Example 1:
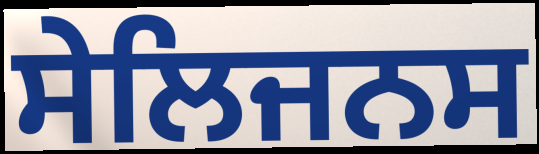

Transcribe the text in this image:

ਸੇਲਿਜਨਸ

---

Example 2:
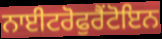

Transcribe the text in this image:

ਨਾਈਟਰੋਫੁਰੈਂਟੋਇਨ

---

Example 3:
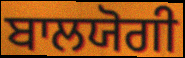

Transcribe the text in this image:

ਬਾਲਯੋਗੀ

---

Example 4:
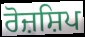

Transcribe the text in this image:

ਰੋਜ਼ਸ਼ਿਪ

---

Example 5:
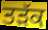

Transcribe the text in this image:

ਤੜੱਕ